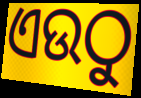
ଏଉଠୁ